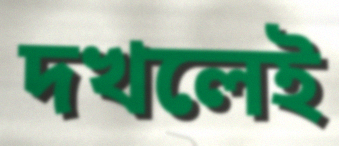
দখলেই